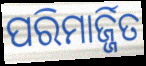
ପରିମାର୍ଜ୍ଜିତ